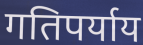
गतिपर्याय